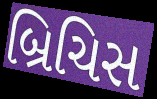
બ્રિચિસ